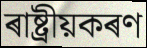
ৰাষ্ট্ৰীয়কৰণ